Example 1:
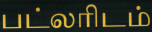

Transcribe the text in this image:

பட்லரிடம்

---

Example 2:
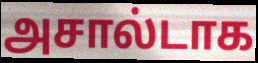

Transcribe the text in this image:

அசால்டாக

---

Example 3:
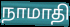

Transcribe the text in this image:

நாமாதி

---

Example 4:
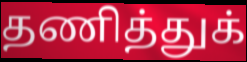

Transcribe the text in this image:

தணித்துக்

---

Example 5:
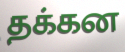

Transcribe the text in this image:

தக்கன